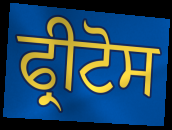
ਫ੍ਰੀਟੋਸ